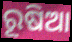
ରୂଷିଆ